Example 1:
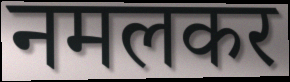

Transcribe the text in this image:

नमलकर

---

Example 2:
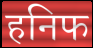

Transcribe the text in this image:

हनिफ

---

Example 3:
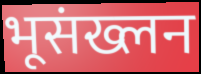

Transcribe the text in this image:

भूसंख्लन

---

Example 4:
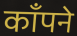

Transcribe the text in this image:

कॉँपने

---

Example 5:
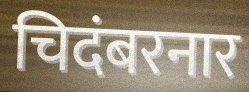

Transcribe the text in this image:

चिदंबरनार